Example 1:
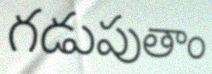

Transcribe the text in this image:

గడుపుతాం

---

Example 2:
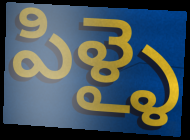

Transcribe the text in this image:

పిళ్ళై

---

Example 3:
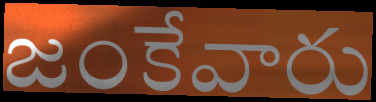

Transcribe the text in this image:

జంకేవారు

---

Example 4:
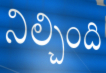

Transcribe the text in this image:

నిల్చింది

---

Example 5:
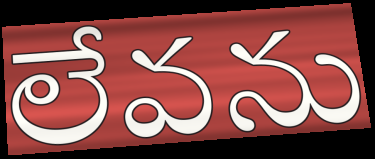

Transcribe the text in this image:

లేవను